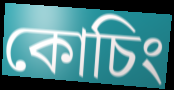
কোচিং